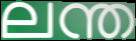
ലന്ത